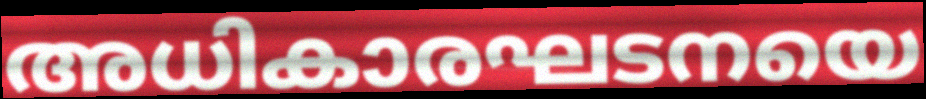
അധികാരഘടനയെ